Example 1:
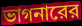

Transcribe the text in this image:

ভাগনারের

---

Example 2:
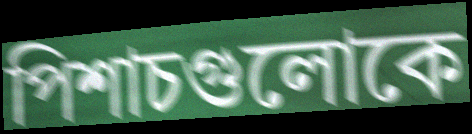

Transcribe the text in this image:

পিশাচগুলোকে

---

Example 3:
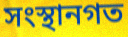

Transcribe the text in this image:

সংস্থানগত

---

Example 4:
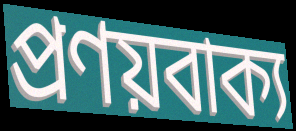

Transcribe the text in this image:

প্রণয়বাক্য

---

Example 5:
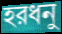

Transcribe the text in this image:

হরধনু